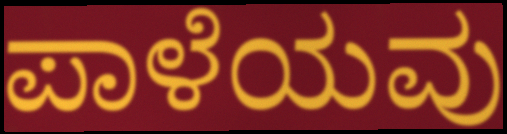
ಪಾಳೆಯವು